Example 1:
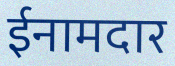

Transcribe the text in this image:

ईनामदार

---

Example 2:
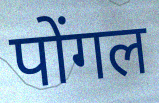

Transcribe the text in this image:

पोंगल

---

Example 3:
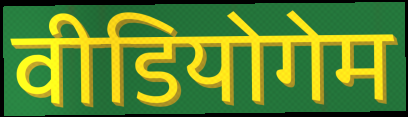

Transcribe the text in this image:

वीडियोगेम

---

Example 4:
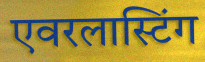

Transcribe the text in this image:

एवरलास्टिंग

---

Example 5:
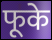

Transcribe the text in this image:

फूके